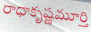
రాధాకృష్ణమూర్తి